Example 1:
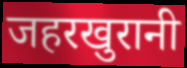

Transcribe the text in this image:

जहरखुरानी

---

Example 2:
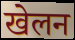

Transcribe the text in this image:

खेलन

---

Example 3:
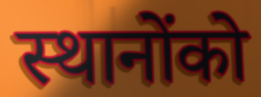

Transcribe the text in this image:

स्थानोंको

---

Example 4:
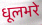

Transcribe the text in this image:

धूलभरे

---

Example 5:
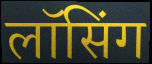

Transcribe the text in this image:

लॉसिंग